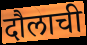
दौलाची